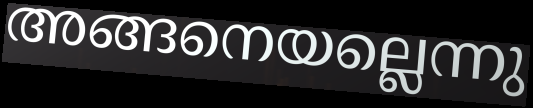
അങ്ങനെയല്ലെന്നു